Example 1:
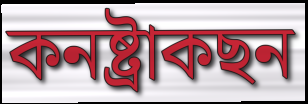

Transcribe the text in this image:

কনষ্ট্ৰাকছন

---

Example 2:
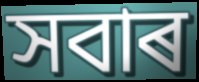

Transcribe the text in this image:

সবাৰ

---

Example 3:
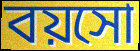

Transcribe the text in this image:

বয়সো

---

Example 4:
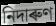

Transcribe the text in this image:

নিদাৰুণ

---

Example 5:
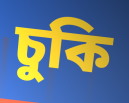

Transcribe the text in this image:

চুকি